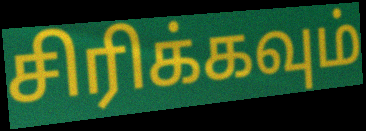
சிரிக்கவும்